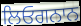
ਲਿਓਗਨਾਨ